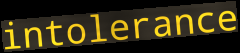
intolerance